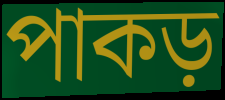
পাকড়